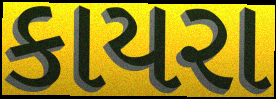
કાયરા